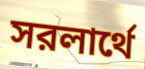
সরলার্থে